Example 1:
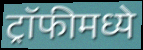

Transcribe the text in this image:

ट्रॉफीमध्ये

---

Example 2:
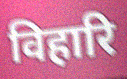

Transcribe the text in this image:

विहारि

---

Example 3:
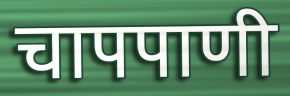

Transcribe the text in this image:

चापपाणी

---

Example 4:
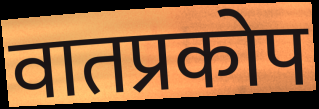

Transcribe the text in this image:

वातप्रकोप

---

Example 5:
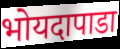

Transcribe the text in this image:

भोयदापाडा